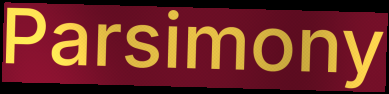
Parsimony